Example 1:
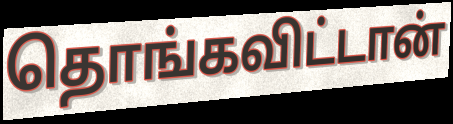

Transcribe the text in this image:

தொங்கவிட்டான்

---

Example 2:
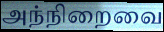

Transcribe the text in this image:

அந்நிறைவை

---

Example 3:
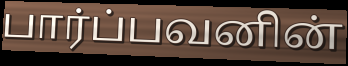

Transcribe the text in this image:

பார்ப்பவனின்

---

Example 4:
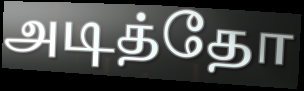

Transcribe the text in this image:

அடித்தோ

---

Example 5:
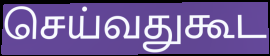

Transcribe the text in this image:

செய்வதுகூட